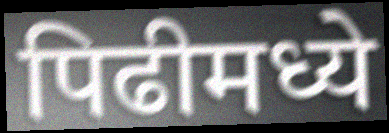
पिढीमध्ये